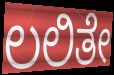
ಲಲಿತೇ